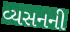
વ્યસનની